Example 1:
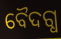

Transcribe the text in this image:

ବୈଦଗ୍ଧ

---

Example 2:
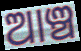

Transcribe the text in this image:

ଆଞ୍ଚ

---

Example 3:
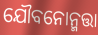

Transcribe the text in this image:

ଯୌବନୋନ୍ମତ୍ତା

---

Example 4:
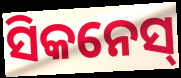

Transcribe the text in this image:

ସିକନେସ୍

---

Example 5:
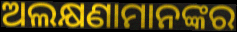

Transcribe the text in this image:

ଅଲକ୍ଷଣାମାନଙ୍କର